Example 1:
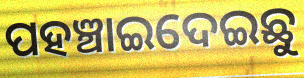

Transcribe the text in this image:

ପହଞ୍ଚାଇଦେଇଛୁ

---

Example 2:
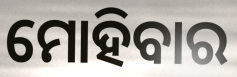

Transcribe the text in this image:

ମୋହିବାର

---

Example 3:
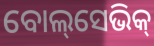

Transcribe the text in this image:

ବୋଲ୍‌ସେଭିକ୍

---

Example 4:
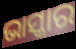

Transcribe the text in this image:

ଭାସ୍କାର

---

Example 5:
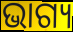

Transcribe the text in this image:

ଭାଗ୍ୟ